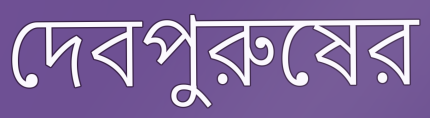
দেবপুরুষের